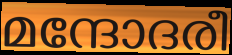
മന്ദോദരീ